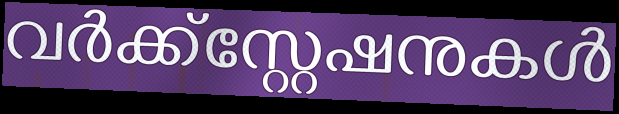
വർക്ക്സ്റ്റേഷനുകൾ